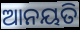
ଆନୟତି